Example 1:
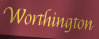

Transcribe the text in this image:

Worthington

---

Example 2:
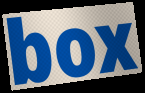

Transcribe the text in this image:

box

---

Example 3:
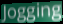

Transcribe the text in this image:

Jogging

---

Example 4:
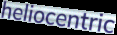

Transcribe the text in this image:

heliocentric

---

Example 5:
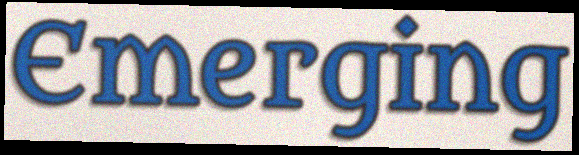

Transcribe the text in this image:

Emerging